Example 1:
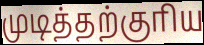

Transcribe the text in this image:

முடித்தற்குரிய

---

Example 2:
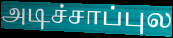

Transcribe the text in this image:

அடிச்சாப்புல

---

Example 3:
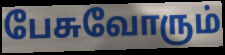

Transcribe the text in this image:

பேசுவோரும்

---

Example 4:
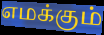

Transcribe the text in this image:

எமக்கும்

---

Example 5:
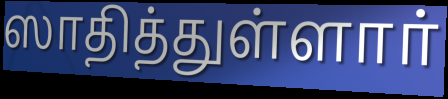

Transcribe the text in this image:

ஸாதித்துள்ளார்